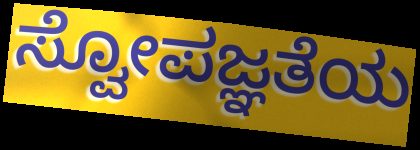
ಸ್ವೋಪಜ್ಞತೆಯ